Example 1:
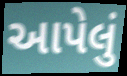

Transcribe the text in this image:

આપેલું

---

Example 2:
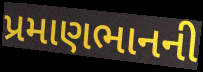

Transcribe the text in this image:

પ્રમાણભાનની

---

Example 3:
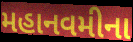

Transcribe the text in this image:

મહાનવમીના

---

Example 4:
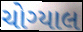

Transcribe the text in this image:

ચોગ્યાલ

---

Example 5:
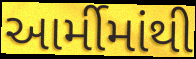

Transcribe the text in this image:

આર્મીમાંથી